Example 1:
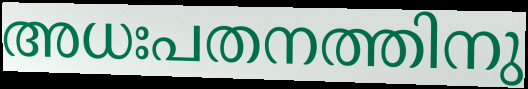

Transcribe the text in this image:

അധഃപതനത്തിനു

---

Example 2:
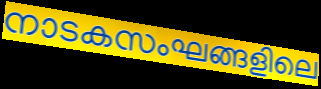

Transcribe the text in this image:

നാടകസംഘങ്ങളിലെ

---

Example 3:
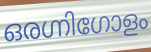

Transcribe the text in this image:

ഒരഗ്നിഗോളം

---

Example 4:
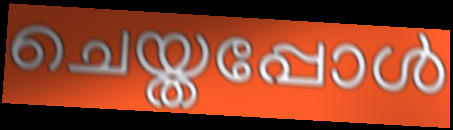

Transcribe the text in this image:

ചെയ്തപ്പോൾ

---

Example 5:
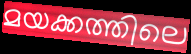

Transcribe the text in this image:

മയക്കത്തിലെ